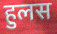
हुलस